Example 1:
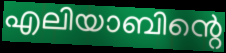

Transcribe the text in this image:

എലിയാബിന്റെ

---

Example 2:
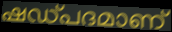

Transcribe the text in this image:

ഷഡ്പദമാണ്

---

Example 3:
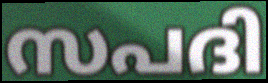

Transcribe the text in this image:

സപദി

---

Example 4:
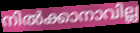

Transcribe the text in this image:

നിൽക്കാനാവില്ല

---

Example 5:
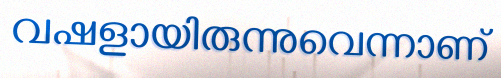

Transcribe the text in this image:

വഷളായിരുന്നുവെന്നാണ്